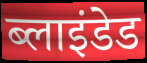
ब्लाइंडेड